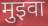
मुइवा